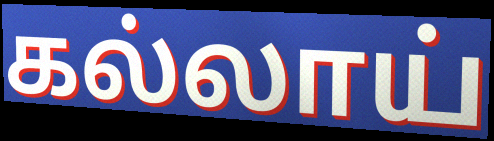
கல்லாய்